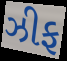
ઝીફ